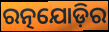
ରତ୍ନଯୋଡ଼ିର